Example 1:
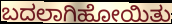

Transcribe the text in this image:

ಬದಲಾಗಿಹೋಯಿತು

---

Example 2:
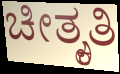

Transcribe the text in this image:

ಚೀತ್ಕೃತಿ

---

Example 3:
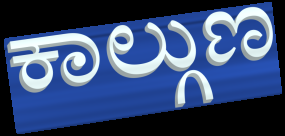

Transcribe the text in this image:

ಕಾಲ್ಗುಣ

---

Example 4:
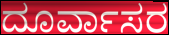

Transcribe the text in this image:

ದೂರ್ವಾಸರ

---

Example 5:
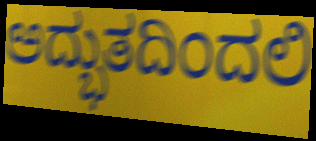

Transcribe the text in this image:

ಅದ್ಭುತದಿಂದಲಿ